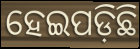
ହେଇପଡ଼ିଛି